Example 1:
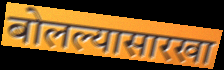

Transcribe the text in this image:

बोलल्यासारखा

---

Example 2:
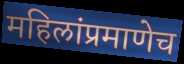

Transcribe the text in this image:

महिलांप्रमाणेच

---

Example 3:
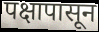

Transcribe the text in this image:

पक्षापासून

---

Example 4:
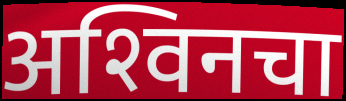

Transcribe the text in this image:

अश्विनचा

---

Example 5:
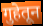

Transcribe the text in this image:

गुहेतून